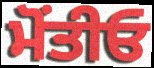
ਮੋਂਤੀਓ